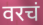
वरचं